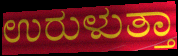
ಉರುಳುತ್ತಾ